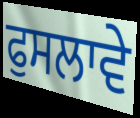
ਫੁਸਲਾਵੇ